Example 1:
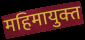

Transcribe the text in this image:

महिमायुक्‍त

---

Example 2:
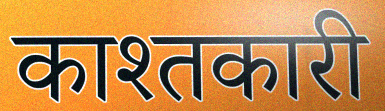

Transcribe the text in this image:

काश्तकारी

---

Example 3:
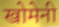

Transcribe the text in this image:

खोमेनी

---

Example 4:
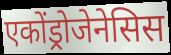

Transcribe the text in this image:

एकोंड्रोजेनेसिस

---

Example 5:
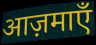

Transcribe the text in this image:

आज़माएँ